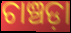
ଚାଞ୍ଚଡ଼ା